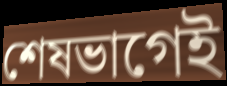
শেষভাগেই